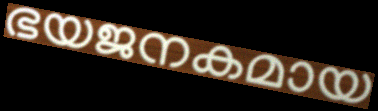
ഭയജനകമായ